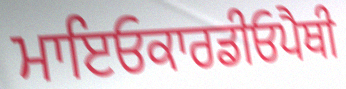
ਮਾਇਓਕਾਰਡੀਓਪੈਥੀ